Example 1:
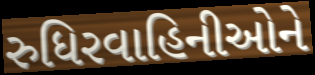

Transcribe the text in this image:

રુધિરવાહિનીઓને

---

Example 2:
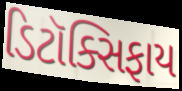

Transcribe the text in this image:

ડિટૉક્સિફાય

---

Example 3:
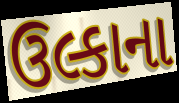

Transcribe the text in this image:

ઉલ્કાના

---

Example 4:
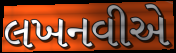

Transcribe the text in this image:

લખનવીએ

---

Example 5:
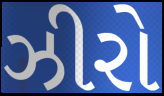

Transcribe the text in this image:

ઝીરો